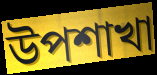
উপশাখা